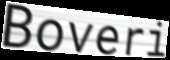
Boveri